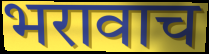
भरावाच